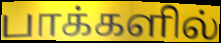
பாக்களில்